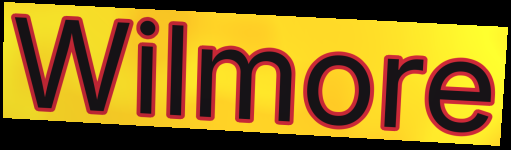
Wilmore